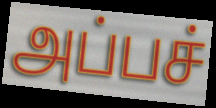
அப்பச்